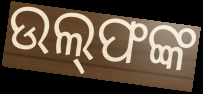
ଉଲ୍‌ଫଙ୍କ